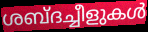
ശബ്ദച്ചീളുകൾ